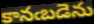
కానఁబడెను